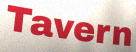
Tavern